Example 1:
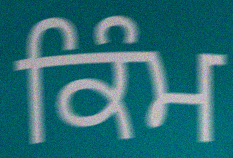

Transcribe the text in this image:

ਕਿੰਮ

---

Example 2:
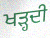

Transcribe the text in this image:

ਖੜ੍ਹਦੀ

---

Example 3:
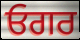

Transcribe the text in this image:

ਓਗਰ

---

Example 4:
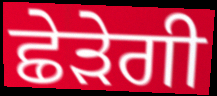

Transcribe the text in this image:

ਛੇੜੇਗੀ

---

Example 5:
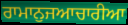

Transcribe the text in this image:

ਰਾਮਾਨੁਜਆਚਾਰੀਆ